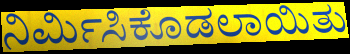
ನಿರ್ಮಿಸಿಕೊಡಲಾಯಿತು